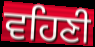
ਵਹਿਣੀ